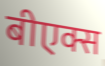
बीएक्स